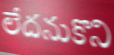
లేదనుకొని